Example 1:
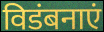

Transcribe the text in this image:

विडंबनाएं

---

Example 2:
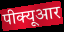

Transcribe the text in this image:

पीक्यूआर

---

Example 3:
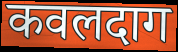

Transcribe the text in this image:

कवलदाग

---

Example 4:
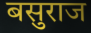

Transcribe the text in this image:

बसुराज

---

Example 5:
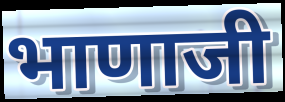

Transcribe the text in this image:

भाणाजी